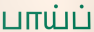
பாய்ப்